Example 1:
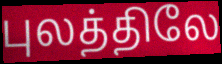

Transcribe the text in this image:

புலத்திலே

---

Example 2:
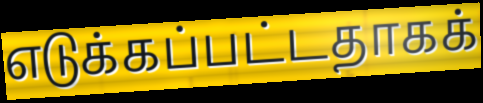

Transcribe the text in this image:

எடுக்கப்பட்டதாகக்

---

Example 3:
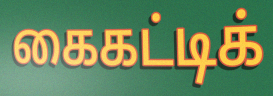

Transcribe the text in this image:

கைகட்டிக்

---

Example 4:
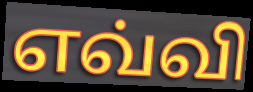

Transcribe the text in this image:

எவ்வி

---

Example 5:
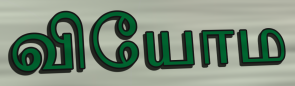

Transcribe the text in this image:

வியோம